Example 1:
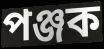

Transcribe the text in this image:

পঞ্জক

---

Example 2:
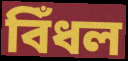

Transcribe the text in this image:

বিঁধল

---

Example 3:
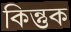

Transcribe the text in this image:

কিন্তুক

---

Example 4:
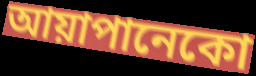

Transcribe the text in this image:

আয়াপানেকো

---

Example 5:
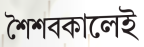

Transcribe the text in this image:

শৈশবকালেই